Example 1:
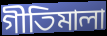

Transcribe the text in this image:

গীতিমালা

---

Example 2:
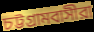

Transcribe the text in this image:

চট্টগ্রামবাসীরা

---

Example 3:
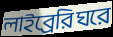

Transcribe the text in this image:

লাইব্রেরিঘরে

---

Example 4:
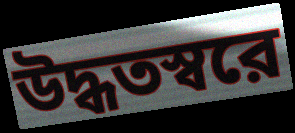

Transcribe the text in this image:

উদ্ধতস্বরে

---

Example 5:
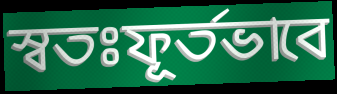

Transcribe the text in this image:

স্বতঃফূর্তভাবে